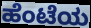
ಹೆಂಟೆಯ